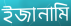
ইজানামি